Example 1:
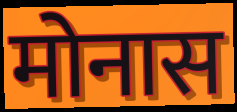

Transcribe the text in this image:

मोनास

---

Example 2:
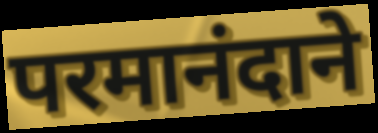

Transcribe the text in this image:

परमानंदाने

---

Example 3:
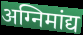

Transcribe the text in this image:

अग्निमांद्य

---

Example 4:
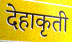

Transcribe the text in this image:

देहाकृती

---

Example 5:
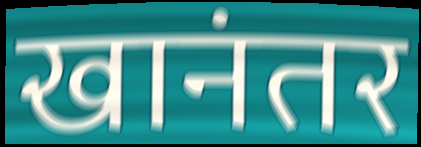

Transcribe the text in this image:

खानंतर